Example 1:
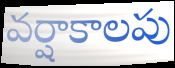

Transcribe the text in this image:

వర్షాకాలపు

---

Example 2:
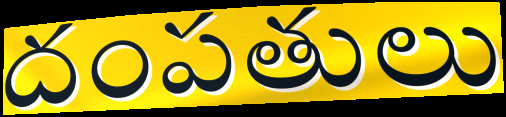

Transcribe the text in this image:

దంపతులు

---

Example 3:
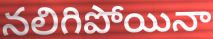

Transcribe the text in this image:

నలిగిపోయినా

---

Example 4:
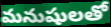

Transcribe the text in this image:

మనుషులతో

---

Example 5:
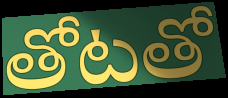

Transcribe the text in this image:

తోటతో